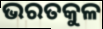
ଭରତକୁଳ